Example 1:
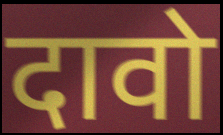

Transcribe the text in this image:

दावो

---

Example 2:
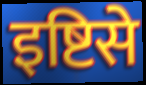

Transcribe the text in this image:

इष्टिसे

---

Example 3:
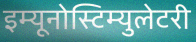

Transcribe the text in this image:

इम्यूनोस्टिम्युलेटरी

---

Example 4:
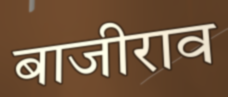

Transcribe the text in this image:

बाजीराव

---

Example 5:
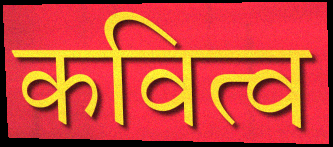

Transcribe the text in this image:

कवित्व